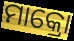
ମାକ୍ରୋ